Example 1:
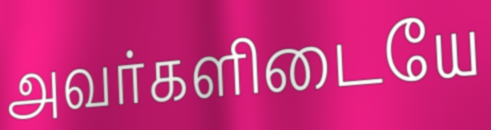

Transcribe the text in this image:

அவர்களிடையே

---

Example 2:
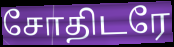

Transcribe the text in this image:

சோதிடரே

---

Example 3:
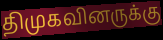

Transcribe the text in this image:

திமுகவினருக்கு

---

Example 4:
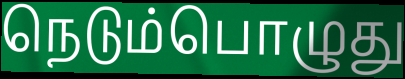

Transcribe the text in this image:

நெடும்பொழுது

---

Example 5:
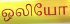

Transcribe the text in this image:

ஒலியோ